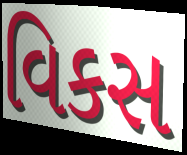
વિકસ